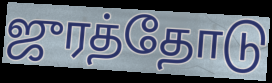
ஜுரத்தோடு